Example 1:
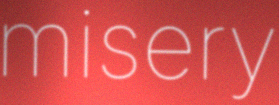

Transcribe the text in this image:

misery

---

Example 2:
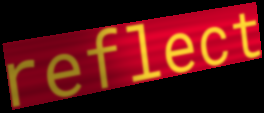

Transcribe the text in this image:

reflect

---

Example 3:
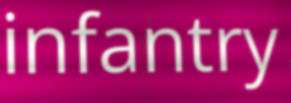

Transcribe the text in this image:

infantry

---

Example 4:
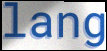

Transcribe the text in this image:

lang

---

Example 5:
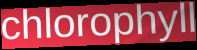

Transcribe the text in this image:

chlorophyll